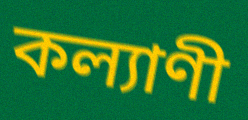
কল্যাণী